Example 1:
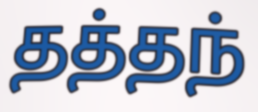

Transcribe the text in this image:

தத்தந்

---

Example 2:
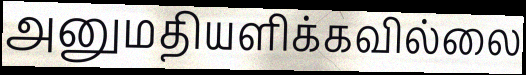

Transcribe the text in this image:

அனுமதியளிக்கவில்லை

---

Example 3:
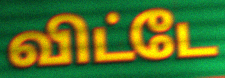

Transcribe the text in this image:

விட்டே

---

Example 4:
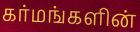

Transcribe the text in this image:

கர்மங்களின்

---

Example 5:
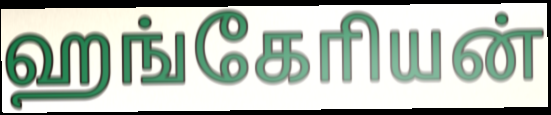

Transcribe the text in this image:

ஹங்கேரியன்